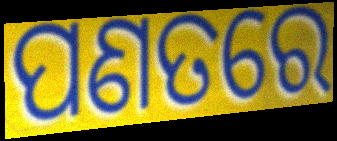
ପଣତରେ